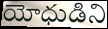
యోధుడిని